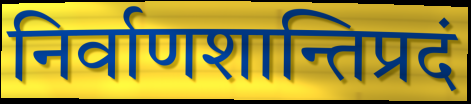
निर्वाणशान्तिप्रदं